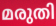
മരുതി